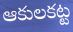
ఆకులకట్ట